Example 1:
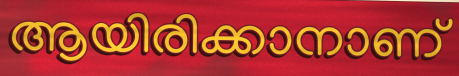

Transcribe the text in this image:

ആയിരിക്കാനാണ്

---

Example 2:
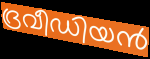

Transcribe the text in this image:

ദ്രവീഡിയൻ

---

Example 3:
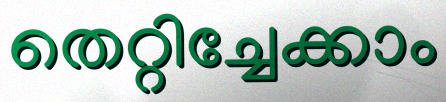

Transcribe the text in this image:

തെറ്റിച്ചേക്കാം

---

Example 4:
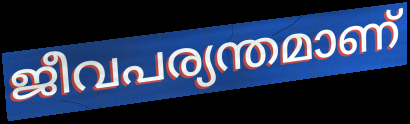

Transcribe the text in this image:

ജീവപര്യന്തമാണ്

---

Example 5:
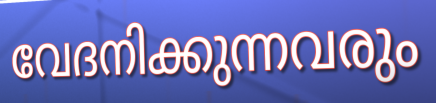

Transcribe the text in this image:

വേദനിക്കുന്നവരും